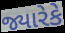
જ્યારેકે